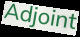
Adjoint